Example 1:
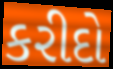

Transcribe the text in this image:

કરીદો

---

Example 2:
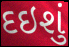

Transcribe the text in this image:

દઇશું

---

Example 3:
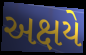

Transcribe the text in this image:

અક્ષયે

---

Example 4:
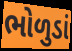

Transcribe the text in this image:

ભોળુડાં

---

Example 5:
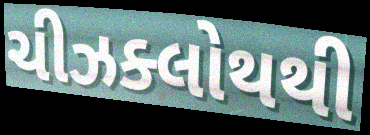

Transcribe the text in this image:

ચીઝક્લોથથી